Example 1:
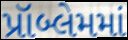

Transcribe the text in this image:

પ્રૉબ્લેમમાં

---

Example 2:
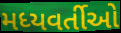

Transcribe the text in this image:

મધ્યવર્તીઓ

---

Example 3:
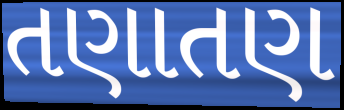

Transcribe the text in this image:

તણાતણ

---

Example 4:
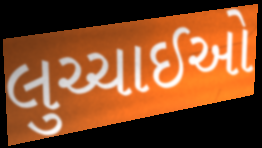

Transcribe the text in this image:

લુચ્ચાઈઓ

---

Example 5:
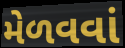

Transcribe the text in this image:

મેળવવાં